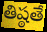
తిష్ఠతే